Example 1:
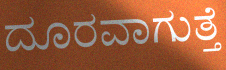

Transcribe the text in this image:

ದೂರವಾಗುತ್ತೆ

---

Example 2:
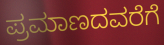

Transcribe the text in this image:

ಪ್ರಮಾಣದವರೆಗೆ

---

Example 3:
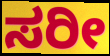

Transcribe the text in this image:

ಸರೀ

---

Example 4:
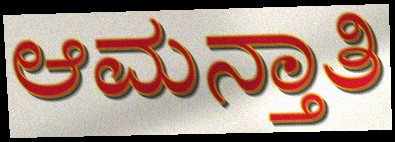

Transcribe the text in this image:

ಆಮನ್ತಾತಿ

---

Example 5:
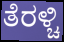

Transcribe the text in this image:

ತೆರಳ್ಚಿ